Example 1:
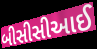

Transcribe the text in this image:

બીસીસીઆઈ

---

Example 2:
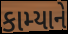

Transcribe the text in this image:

કામ્યાને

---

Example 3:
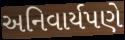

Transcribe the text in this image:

અનિવાર્યપણે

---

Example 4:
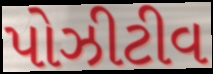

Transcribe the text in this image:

પોઝીટીવ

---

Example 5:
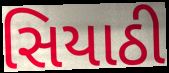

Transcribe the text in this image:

સિયાઠી